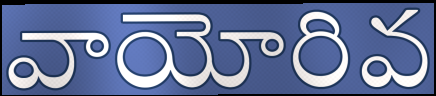
వాయోరివ